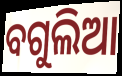
ବଗୁଲିଆ